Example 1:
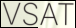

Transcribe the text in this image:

VSAT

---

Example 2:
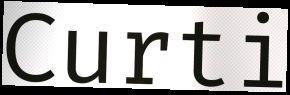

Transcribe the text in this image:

Curti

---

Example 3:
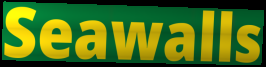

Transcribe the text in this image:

Seawalls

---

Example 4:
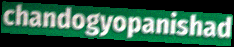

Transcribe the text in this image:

chandogyopanishad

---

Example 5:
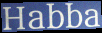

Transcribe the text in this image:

Habba